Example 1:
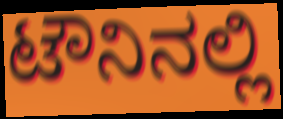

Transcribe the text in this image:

ಟೌನಿನಲ್ಲಿ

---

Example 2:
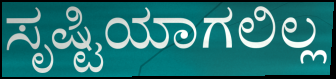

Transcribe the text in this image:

ಸೃಷ್ಟಿಯಾಗಲಿಲ್ಲ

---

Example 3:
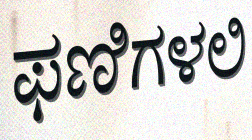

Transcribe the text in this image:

ಫಣಿಗಳಲಿ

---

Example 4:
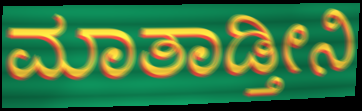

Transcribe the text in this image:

ಮಾತಾಡ್ತೀನಿ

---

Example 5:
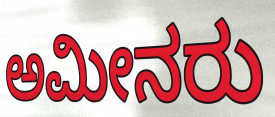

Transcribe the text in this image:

ಅಮೀನರು